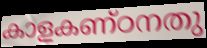
കാളകണ്ഠനതു